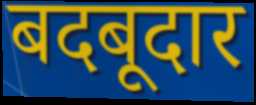
बदबूदार